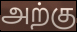
அற்கு